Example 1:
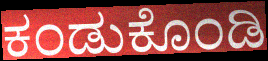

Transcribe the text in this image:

ಕಂಡುಕೊಂಡಿ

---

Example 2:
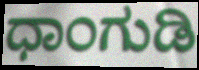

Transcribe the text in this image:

ಧಾಂಗುಡಿ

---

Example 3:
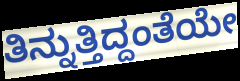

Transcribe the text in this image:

ತಿನ್ನುತ್ತಿದ್ದಂತೆಯೇ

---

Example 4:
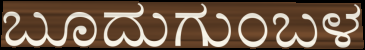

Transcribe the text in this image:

ಬೂದುಗುಂಬಳ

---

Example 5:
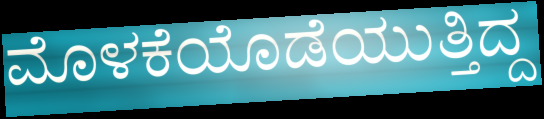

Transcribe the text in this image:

ಮೊಳಕೆಯೊಡೆಯುತ್ತಿದ್ದ